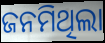
ଜନମିଥିଲା